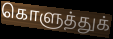
கொளுத்துக்